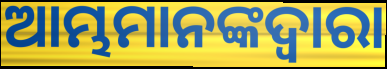
ଆମ୍ଭମାନଙ୍କଦ୍ୱାରା